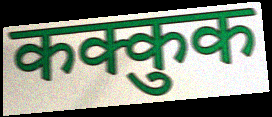
कक्कुक